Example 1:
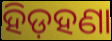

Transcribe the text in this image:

ହିଡ଼ହଣା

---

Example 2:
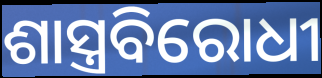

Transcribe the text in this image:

ଶାସ୍ତ୍ରବିରୋଧୀ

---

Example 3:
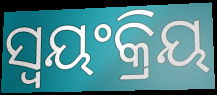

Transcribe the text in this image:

ସ୍ୱୟଂକ୍ରିୟ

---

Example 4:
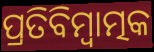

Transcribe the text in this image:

ପ୍ରତିବିମ୍ବାତ୍ମକ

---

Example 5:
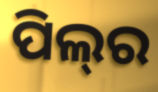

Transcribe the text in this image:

ପିଲ୍‌ର